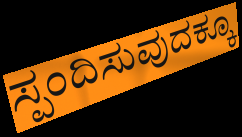
ಸ್ಪಂದಿಸುವುದಕ್ಕೂ